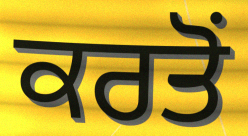
ਕਰਤੋਂ